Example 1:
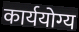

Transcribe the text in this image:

कार्ययोग्य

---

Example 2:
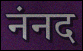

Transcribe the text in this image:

नंनद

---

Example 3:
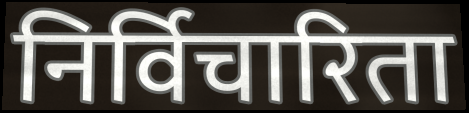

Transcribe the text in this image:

निर्विचारिता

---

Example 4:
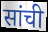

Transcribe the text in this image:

सांची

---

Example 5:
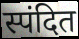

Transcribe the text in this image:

स्पंदित